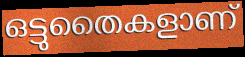
ഒട്ടുതൈകളാണ്